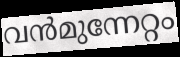
വൻമുന്നേറ്റം